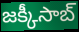
జక్కీసాబ్